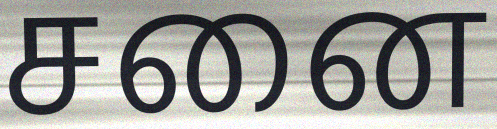
சனை